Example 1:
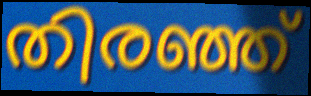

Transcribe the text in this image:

തിരഞ്ഞ്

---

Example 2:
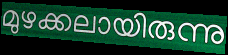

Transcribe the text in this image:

മുഴക്കലായിരുന്നു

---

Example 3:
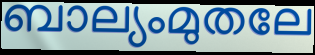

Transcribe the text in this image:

ബാല്യംമുതലേ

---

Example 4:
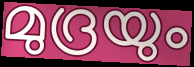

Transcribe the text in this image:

മുദ്രയും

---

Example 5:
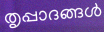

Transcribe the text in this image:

തൃപ്പാദങ്ങൾ